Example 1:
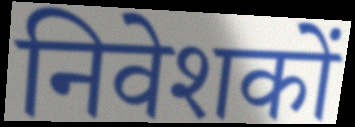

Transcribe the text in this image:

निवेशकों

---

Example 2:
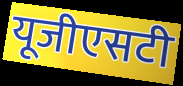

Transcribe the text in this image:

यूजीएसटी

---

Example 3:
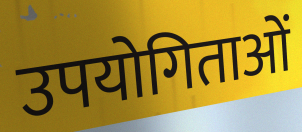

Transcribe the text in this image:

उपयोगिताओं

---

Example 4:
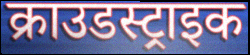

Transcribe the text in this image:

क्राउडस्ट्राइक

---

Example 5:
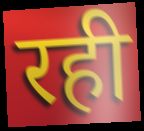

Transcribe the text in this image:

रही